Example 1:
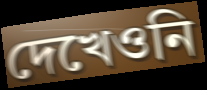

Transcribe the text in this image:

দেখেওনি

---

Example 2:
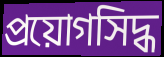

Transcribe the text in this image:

প্রয়োগসিদ্ধ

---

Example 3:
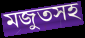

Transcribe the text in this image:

মজুতসহ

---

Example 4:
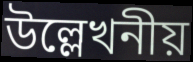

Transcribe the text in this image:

উল্লেখনীয়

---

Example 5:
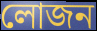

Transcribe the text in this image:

লোজন